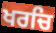
ਖਰਚਿ